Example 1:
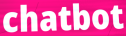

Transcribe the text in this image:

chatbot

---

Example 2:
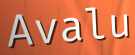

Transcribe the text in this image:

Avalu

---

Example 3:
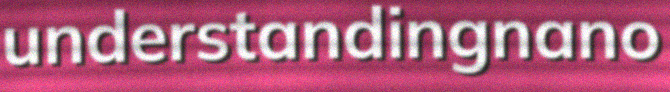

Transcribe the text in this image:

understandingnano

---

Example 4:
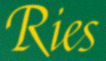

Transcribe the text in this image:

Ries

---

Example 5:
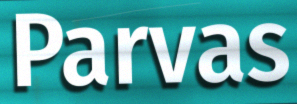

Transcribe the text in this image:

Parvas